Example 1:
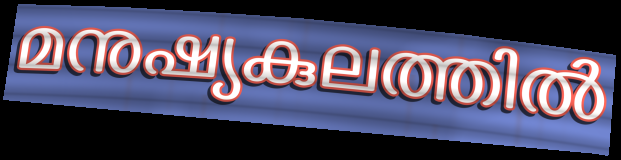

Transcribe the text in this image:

മനുഷ്യകുലത്തിൽ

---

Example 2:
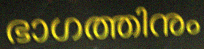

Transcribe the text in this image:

ഭാഗത്തിനും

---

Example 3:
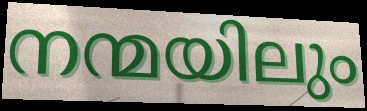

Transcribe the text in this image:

നന്മയിലും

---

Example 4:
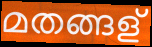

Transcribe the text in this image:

മതങ്ങള്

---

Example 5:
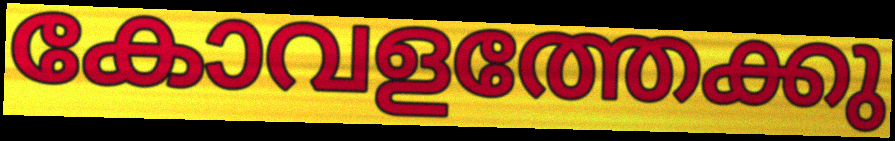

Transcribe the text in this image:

കോവളത്തേക്കു